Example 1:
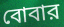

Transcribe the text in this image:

বোবার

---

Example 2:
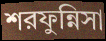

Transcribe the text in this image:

শরফুন্নিসা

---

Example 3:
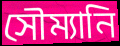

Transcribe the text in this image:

সৌম্যানি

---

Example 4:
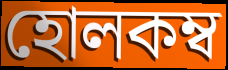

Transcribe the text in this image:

হোলকম্ব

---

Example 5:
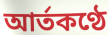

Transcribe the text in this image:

আর্তকণ্ঠে